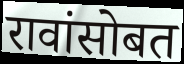
रावांसोबत